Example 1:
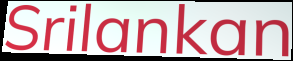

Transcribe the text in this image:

Srilankan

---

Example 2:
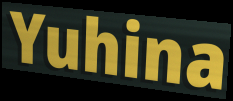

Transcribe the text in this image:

Yuhina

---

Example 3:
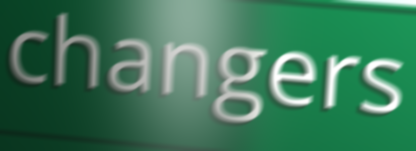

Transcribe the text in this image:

changers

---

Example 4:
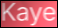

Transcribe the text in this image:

Kaye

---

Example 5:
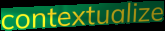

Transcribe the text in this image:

contextualize